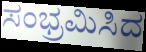
ಸಂಭ್ರಮಿಸಿದ